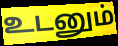
உடனும்